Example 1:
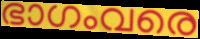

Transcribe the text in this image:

ഭാഗംവരെ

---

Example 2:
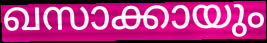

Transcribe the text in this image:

ഖസാക്കായും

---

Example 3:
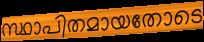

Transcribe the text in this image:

സ്ഥാപിതമായതോടെ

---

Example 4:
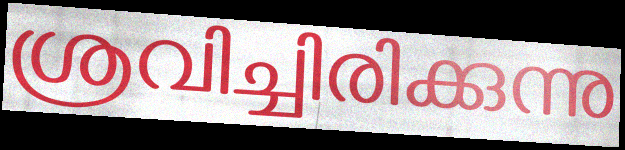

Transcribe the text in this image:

ശ്രവിച്ചിരിക്കുന്നു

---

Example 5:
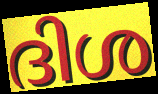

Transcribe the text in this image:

ദിശ